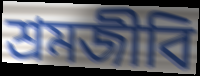
শ্রমজীবি